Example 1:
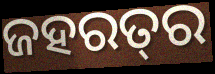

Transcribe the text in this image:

ଜହରତ୍‍ର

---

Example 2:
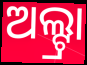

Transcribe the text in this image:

ଅଲ୍ଟ୍ରା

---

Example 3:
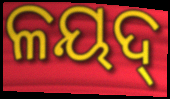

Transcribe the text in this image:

ଳୟଦ୍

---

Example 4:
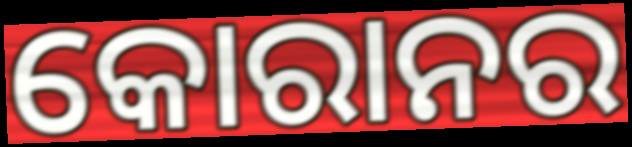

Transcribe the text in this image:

କୋରାନର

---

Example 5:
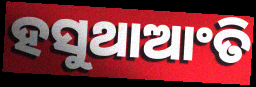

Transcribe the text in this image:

ହସୁଥାଆଂତି